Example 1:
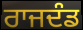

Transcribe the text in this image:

ਰਾਜਦੰਡ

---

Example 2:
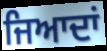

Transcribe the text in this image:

ਜਿਆਦਾਂ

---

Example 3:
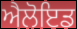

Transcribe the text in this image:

ਐਲੋਇਡ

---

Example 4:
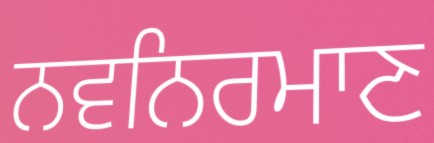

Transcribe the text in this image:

ਨਵਨਿਰਮਾਣ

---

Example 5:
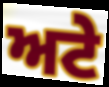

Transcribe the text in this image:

ਅਟੇ